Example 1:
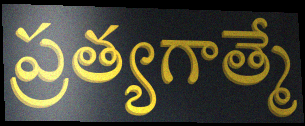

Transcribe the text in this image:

ప్రత్యగాత్మే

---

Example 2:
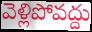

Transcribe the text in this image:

వెళ్లిపోవద్దు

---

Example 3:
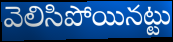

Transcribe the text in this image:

వెలిసిపోయినట్టు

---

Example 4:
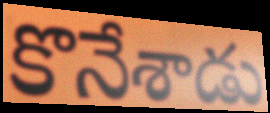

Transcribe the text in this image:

కొనేశాడు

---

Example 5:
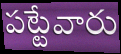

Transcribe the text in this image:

పట్టేవారు